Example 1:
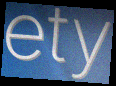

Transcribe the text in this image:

ety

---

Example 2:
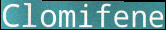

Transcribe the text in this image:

Clomifene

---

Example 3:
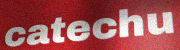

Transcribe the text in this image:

catechu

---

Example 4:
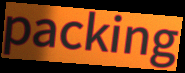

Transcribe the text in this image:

packing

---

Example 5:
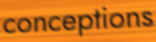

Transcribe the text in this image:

conceptions